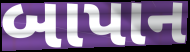
બાપાન